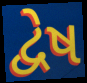
દ્વેષ